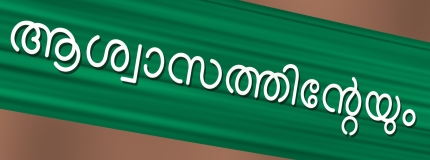
ആശ്വാസത്തിന്റേയും